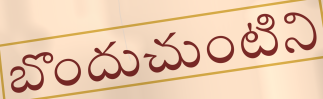
బొందుచుంటిని